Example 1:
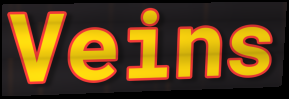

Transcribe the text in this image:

Veins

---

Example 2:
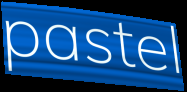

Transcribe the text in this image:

pastel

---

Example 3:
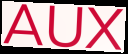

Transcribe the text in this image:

AUX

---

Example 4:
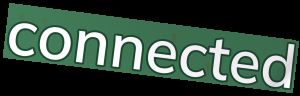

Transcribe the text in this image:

connected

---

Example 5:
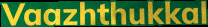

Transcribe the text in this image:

Vaazhthukkal